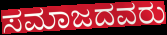
ಸಮಾಜದವರು